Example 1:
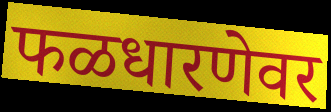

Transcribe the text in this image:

फळधारणेवर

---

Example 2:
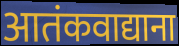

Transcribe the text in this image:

आतंकवाद्याना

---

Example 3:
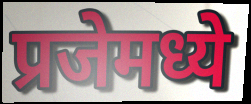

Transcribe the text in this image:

प्रजेमध्ये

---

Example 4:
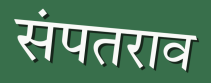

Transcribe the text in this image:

संपतराव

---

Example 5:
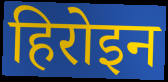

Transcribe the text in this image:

हिरोइन